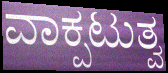
ವಾಕ್ಪಟುತ್ವ